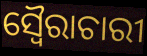
ସ୍ୱୈରାଚାରୀ